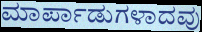
ಮಾರ್ಪಾಡುಗಳಾದವು